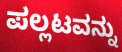
ಪಲ್ಲಟವನ್ನು